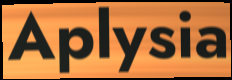
Aplysia